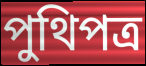
পুথিপত্র